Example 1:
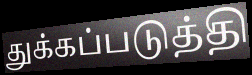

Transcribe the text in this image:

துக்கப்படுத்தி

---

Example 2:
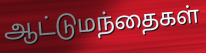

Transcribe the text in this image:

ஆட்டுமந்தைகள்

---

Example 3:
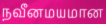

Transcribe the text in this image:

நவீனமயமான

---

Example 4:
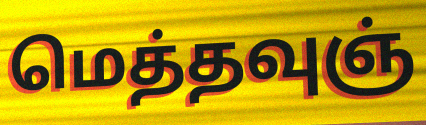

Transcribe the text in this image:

மெத்தவுஞ்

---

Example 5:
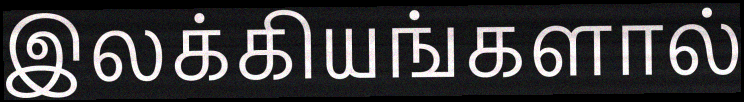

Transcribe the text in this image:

இலக்கியங்களால்